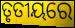
ତୃତୀୟରେ